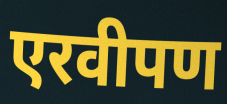
एरवीपण